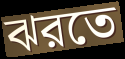
ঝরতে